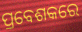
ପ୍ରବେଶକରେ